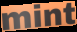
mint